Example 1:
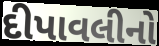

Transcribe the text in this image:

દીપાવલીનો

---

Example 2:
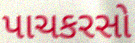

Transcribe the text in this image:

પાચકરસો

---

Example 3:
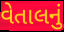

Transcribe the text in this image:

વેતાલનું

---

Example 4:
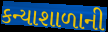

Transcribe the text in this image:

કન્યાશાળાની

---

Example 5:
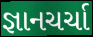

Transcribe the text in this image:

જ્ઞાનચર્ચા